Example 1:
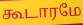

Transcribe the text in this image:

கூடாரமே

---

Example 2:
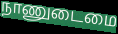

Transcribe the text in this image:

நாணுடைமை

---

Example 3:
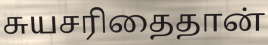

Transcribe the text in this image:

சுயசரிதைதான்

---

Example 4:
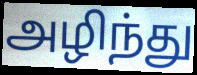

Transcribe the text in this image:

அழிந்து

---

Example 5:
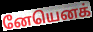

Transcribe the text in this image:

னேயெனக்